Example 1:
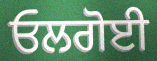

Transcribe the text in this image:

ਓਲਗੋਈ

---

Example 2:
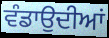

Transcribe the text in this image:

ਵੰਡਾਉਦੀਆਂ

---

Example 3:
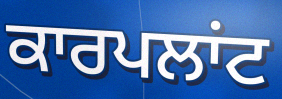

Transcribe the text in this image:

ਕਾਰਪਲਾਂਟ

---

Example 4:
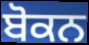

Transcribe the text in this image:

ਬੋਕਨ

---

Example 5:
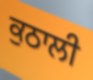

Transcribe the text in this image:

ਕੁਠਾਲੀ